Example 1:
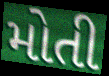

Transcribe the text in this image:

મોતી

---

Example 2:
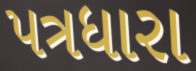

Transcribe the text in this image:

પત્રધારા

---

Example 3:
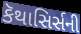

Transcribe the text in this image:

કૅથાસિર્સની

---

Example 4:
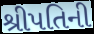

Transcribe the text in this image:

શ્રીપતિની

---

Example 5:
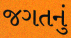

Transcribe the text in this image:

જગતનું